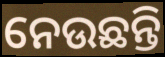
ନେଉଛନ୍ତି